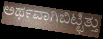
ಅರ್ಥವಾಗಿಬಿಟ್ಟಿತ್ತು